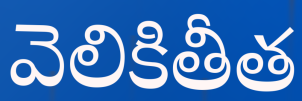
వెలికితీత